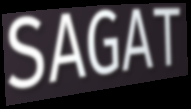
SAGAT